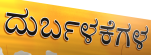
ದುರ್ಬಳಕೆಗಳ